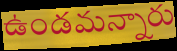
ఉండమన్నారు